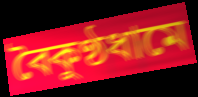
বৈকুণ্ঠধামে